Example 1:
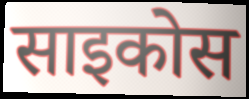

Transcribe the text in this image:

साइकोस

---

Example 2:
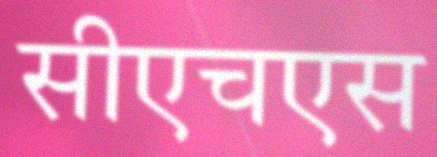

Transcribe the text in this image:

सीएचएस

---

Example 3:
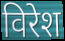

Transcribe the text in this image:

विरेश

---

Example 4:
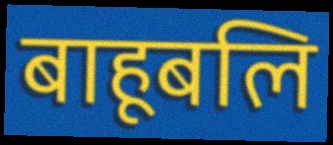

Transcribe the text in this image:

बाहूबलि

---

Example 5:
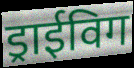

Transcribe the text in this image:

ड्राईविग